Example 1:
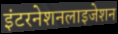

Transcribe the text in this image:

इंटरनेशनलाइजेशन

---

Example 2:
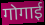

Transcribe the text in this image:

गोगाई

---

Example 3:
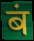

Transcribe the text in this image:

बं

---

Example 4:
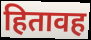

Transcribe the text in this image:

हितावह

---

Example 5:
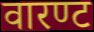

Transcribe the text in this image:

वारण्ट